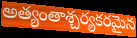
అత్యంతాశ్చర్యకరమైన